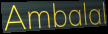
Ambalal